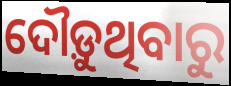
ଦୌଡ଼ୁଥିବାରୁ